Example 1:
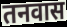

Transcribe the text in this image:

तनवास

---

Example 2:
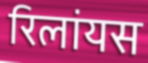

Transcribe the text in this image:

रिलांयस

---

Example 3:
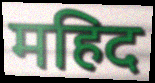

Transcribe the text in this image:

महिद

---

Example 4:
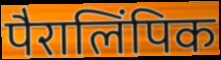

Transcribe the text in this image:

पैरालिंपिक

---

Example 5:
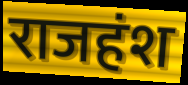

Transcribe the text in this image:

राजहंश